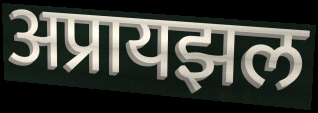
अप्रायझल